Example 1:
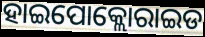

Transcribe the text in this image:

ହାଇପୋକ୍ଲୋରାଇଡ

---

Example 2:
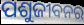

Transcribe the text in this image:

ପଶୁଜୀବନର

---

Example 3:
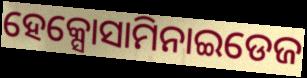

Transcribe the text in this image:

ହେକ୍ସୋସାମିନାଇଡେଜ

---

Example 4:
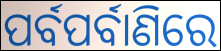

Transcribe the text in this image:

ପର୍ବପର୍ବାଣିରେ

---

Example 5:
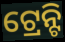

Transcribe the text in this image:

ଟ୍ରେନ୍ଟି